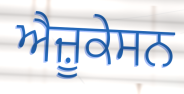
ਐਜ਼ੂਕੇਸਨ